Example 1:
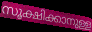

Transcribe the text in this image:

സൂക്ഷിക്കാനുള്ള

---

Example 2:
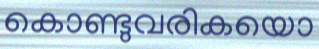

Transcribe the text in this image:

കൊണ്ടുവരികയൊ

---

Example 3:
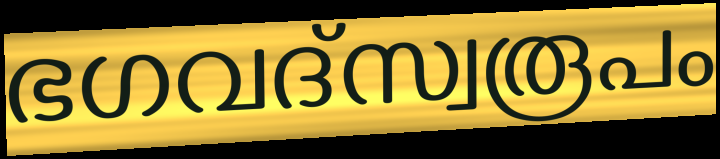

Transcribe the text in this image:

ഭഗവദ്സ്വരൂപം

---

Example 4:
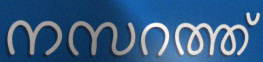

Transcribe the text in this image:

നസറത്ത്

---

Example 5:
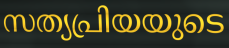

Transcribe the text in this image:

സത്യപ്രിയയുടെ